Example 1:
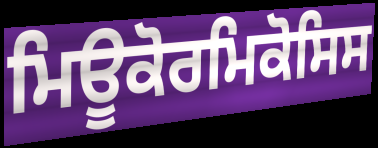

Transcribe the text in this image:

ਮਿਊਕੋਰਮਿਕੋਸਿਸ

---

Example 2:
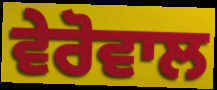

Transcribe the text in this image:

ਵੇਰੋਵਾਲ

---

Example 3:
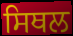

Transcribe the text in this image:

ਸਿਥਲ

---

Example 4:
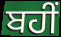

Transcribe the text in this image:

ਬਹੀਂ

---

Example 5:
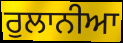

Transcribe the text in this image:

ਰੁਲਾਨੀਆ